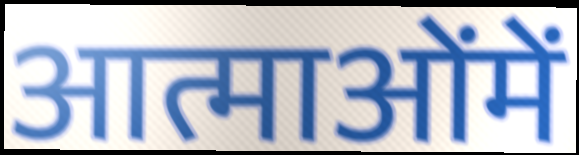
आत्माओंमें